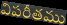
విపరీతము